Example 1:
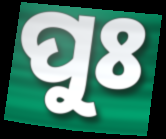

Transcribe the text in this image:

ପୁଃ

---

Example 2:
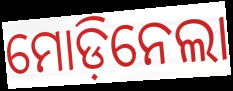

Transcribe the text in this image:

ମୋଡ଼ିନେଲା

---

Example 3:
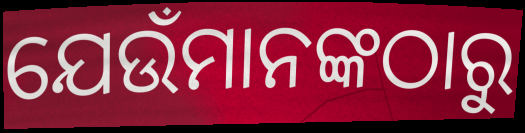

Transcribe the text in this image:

ଯେଉଁମାନଙ୍କଠାରୁ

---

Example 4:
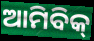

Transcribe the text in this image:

ଆମିବିକ୍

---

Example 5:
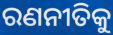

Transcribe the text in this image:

ରଣନୀତିକୁ